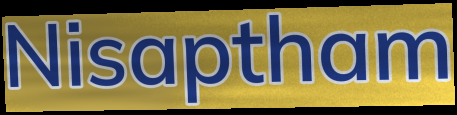
Nisaptham